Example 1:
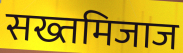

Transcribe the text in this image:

सख्तमिजाज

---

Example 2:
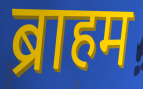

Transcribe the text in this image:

ब्राहम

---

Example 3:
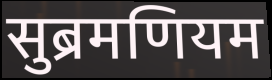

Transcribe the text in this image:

सुब्रमणियम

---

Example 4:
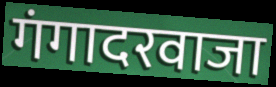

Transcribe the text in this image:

गंगादरवाजा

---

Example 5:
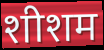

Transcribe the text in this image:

शीशम